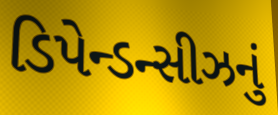
ડિપેન્ડન્સીઝનું